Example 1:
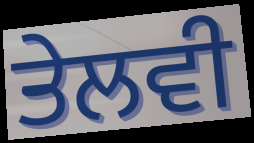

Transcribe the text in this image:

ਤੇਲਵੀ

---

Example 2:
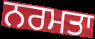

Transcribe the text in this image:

ਨਰਮਤਾ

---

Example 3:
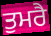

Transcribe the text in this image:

ਤੁਮਰੈ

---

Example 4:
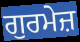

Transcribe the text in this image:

ਗੁਰਮੇਜ਼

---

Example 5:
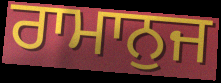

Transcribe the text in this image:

ਰਾਮਾਨੁਜ